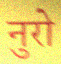
नुरो